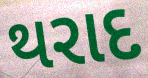
થરાદ